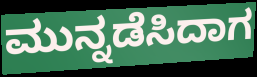
ಮುನ್ನಡೆಸಿದಾಗ